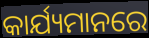
କାର୍ଯ୍ୟମାନରେ